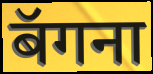
बॅगना